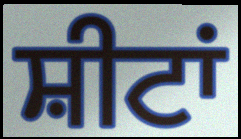
ਸ਼ੀਟਾਂ